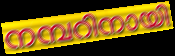
നമ്പറിനായി